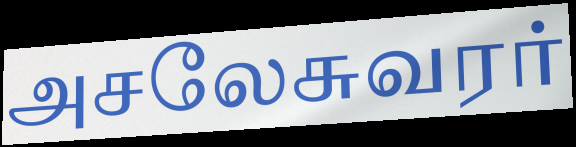
அசலேசுவரர்